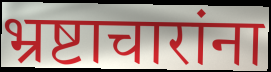
भ्रष्टाचारांना